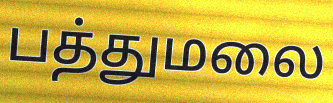
பத்துமலை